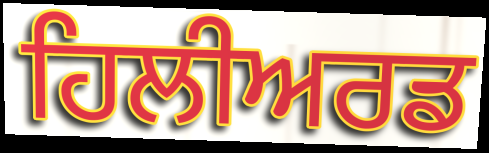
ਹਿਲੀਅਰਡ